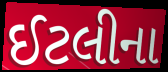
ઈટલીના